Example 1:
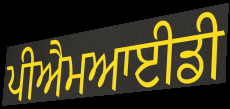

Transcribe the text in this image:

ਪੀਐਮਆਈਡੀ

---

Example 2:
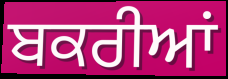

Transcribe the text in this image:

ਬਕਰੀਆਂ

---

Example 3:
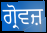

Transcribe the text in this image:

ਗ੍ਰੋਵਜ਼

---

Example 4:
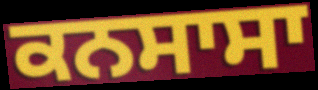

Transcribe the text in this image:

ਕਨਸਾਸਾ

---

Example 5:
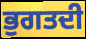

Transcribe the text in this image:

ਭੁਗਤਦੀ